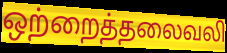
ஒற்றைத்தலைவலி